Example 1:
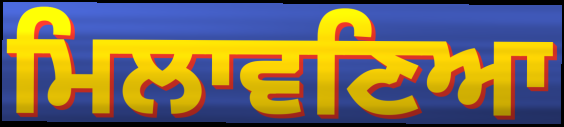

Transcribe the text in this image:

ਮਿਲਾਵਣਿਆ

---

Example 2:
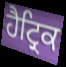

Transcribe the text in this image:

ਹੈਟ੍ਰਿਕ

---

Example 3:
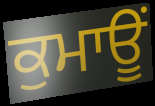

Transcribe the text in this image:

ਕੁਮਾਊਂ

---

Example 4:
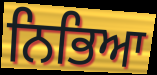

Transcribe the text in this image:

ਨਿਭਿਆ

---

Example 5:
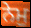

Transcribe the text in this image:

ਨੇਮੁ